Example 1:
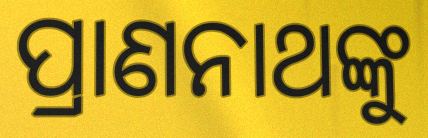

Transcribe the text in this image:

ପ୍ରାଣନାଥଙ୍କୁ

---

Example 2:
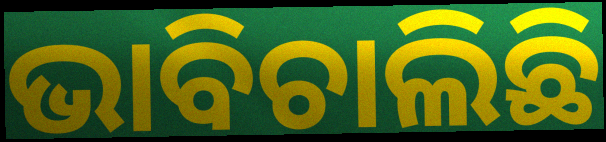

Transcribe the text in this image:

ଭାବିଚାଲିଛି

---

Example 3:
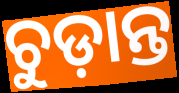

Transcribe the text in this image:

ଚୁଡ଼ାନ୍ତ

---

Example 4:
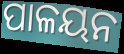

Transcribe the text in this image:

ପାଳୟନ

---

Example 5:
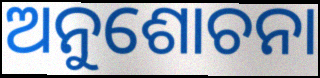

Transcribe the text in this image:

ଅନୁଶୋଚନା